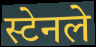
स्टेनले